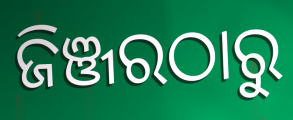
ଜିଞ୍ଜରଠାରୁ